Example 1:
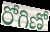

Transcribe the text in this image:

రోగిణో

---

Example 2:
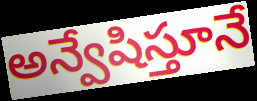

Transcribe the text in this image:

అన్వేషిస్తూనే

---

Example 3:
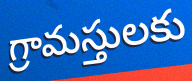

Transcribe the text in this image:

గ్రామస్తులకు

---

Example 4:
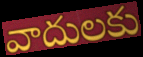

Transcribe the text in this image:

వాదులకు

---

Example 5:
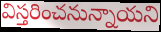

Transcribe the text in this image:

విస్తరించనున్నాయని